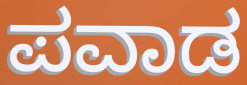
ಪವಾಡ